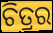
ଚିତ୍ରର